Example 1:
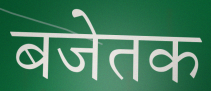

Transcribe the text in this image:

बजेतक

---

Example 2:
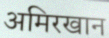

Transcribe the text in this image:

अमिरखान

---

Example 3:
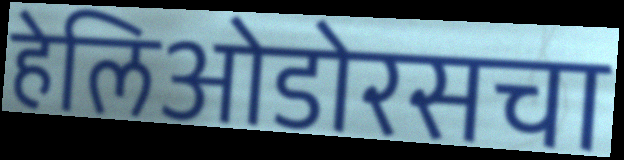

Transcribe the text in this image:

हेलिओडोरसचा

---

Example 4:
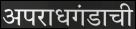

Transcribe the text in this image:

अपराधगंडाची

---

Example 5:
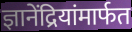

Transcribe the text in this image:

ज्ञानेंद्रियांमार्फत